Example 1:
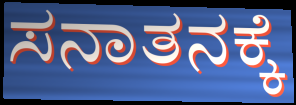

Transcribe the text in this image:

ಸನಾತನಕ್ಕೆ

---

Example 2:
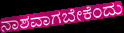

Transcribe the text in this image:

ನಾಶವಾಗಬೇಕೆಂದು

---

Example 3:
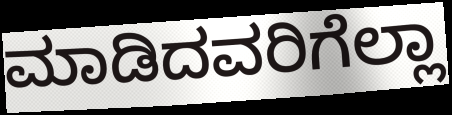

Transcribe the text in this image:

ಮಾಡಿದವರಿಗೆಲ್ಲಾ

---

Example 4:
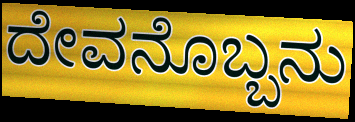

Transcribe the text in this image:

ದೇವನೊಬ್ಬನು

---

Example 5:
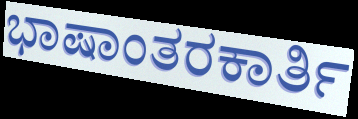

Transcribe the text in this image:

ಭಾಷಾಂತರಕಾರ್ತಿ